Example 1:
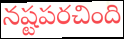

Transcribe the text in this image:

నష్టపరచింది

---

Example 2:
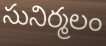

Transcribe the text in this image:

సునిర్మలం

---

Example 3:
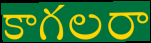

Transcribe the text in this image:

కాగలరా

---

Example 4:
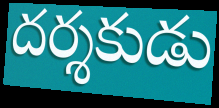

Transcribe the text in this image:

దర్శకుడు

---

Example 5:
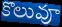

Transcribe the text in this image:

కొలువూ